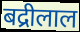
बद्रीलाल